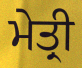
ਮੇਤ੍ਰੀ